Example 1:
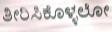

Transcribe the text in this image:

ತೀರಿಸಿಕೊಳ್ಳಲೋ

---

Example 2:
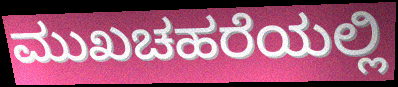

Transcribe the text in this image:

ಮುಖಚಹರೆಯಲ್ಲಿ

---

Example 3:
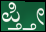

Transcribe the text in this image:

ಪ್ತ್ತೀ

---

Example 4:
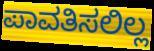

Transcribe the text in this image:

ಪಾವತಿಸಲಿಲ್ಲ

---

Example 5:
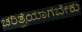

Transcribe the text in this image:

ಚರಿತ್ರೆಯಾಗಬೇಕು